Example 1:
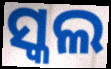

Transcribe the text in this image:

ସ୍କଲ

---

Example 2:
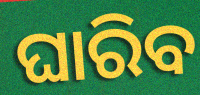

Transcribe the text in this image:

ଘାରିବ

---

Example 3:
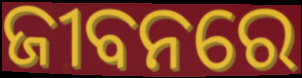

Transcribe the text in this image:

ଜୀବନରେ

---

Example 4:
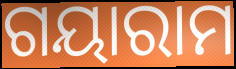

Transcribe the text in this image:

ଗୟାରାମ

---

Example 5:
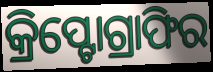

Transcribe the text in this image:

କ୍ରିପ୍ଟୋଗ୍ରାଫିର